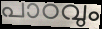
പാഠവും